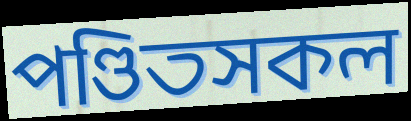
পণ্ডিতসকল